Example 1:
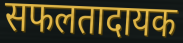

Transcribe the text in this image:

सफलतादायक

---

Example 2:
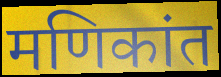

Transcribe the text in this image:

मणिकांत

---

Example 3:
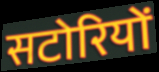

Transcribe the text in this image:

सटोरियों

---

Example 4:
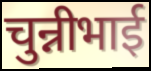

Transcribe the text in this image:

चुन्नीभाई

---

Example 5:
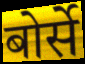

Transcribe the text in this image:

बोर्से